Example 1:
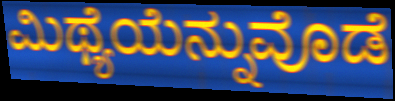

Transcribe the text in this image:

ಮಿಥ್ಯೆಯೆನ್ನುವೊಡೆ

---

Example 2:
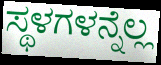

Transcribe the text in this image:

ಸ್ಥಳಗಳನ್ನೆಲ್ಲ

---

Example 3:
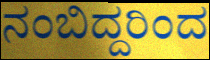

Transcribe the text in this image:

ನಂಬಿದ್ದರಿಂದ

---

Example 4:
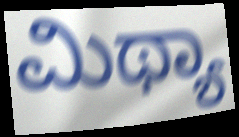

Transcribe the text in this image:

ಮಿಥ್ಯಾ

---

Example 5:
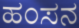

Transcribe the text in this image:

ಹಂಸನ